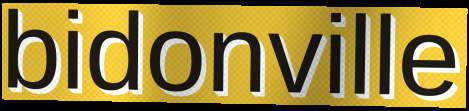
bidonville